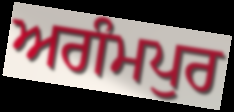
ਅਗੰਮਪੁਰ